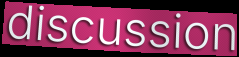
discussion